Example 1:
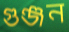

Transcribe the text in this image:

গুঞ্জন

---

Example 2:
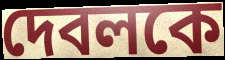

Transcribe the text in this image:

দেবলকে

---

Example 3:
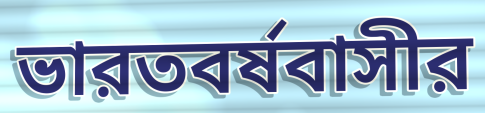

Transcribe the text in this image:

ভারতবর্ষবাসীর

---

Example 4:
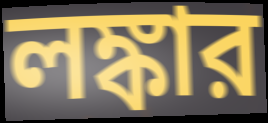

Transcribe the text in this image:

লঙ্কার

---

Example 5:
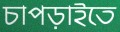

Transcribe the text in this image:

চাপড়াইতে